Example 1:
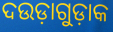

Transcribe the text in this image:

ଦଉଡ଼ାଗୁଡ଼ାକ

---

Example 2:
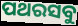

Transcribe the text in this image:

ପଥରସବୁ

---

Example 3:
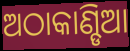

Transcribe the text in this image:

ଅଠାକାଣ୍ଡିଆ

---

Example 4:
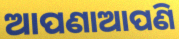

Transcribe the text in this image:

ଆପଣାଆପଣି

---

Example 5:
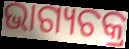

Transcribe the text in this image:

ଭାଗ୍ୟଚକ୍ର